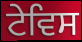
ਟੇਵਿਸ